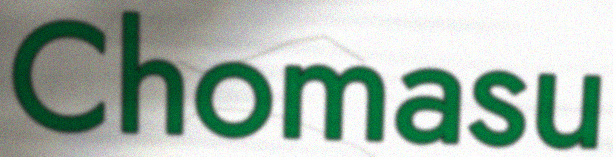
Chomasu